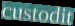
custodit